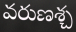
వరుణశ్చ